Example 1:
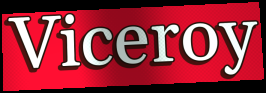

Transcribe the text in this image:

Viceroy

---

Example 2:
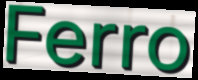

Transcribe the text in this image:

Ferro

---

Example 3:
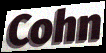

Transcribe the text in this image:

Cohn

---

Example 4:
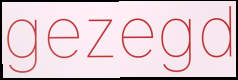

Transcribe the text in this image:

gezegd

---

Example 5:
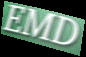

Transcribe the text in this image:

EMD